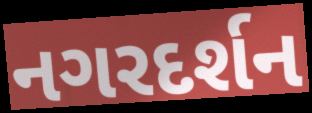
નગરદર્શન